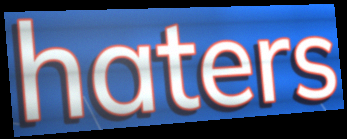
haters